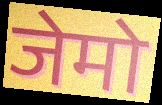
जेमो